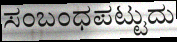
ಸಂಬಂಧಪಟ್ಟುದು